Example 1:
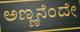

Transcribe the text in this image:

ಅಣ್ಣನೆಂದೇ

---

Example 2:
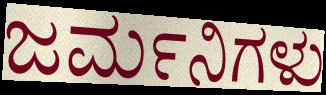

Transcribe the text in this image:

ಜರ್ಮನಿಗಳು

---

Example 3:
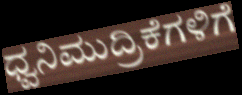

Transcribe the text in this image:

ಧ್ವನಿಮುದ್ರಿಕೆಗಳಿಗೆ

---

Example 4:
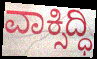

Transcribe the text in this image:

ವಾಕ್ಸಿದ್ಧಿ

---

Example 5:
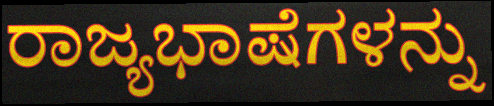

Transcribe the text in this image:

ರಾಜ್ಯಭಾಷೆಗಳನ್ನು